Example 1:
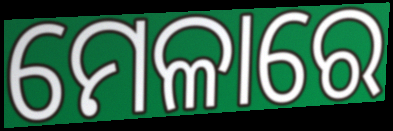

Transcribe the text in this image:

ମେଳାରେ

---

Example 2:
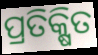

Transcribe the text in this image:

ପ୍ରତିକ୍ଷିତ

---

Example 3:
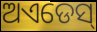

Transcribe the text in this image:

ଅଏଡେସ୍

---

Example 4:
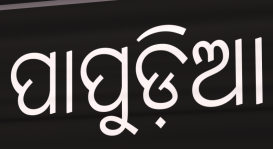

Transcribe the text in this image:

ପାପୁଡ଼ିଆ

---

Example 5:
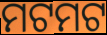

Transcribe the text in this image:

ମଟମଟ